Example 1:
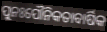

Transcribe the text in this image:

ପୁନଃପୌନିକତାବାର୍ଷିକ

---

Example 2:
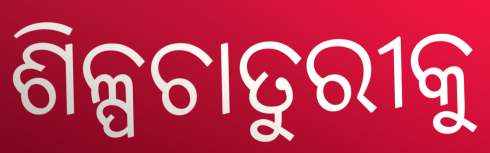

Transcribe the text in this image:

ଶିଳ୍ପଚାତୁରୀକୁ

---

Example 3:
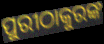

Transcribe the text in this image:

ପୁରୀଠାକୁରଙ୍କ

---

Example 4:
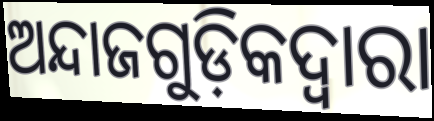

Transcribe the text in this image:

ଅନ୍ଦାଜଗୁଡ଼ିକଦ୍ୱାରା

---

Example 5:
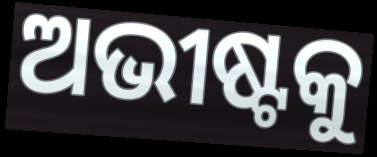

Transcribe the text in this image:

ଅଭୀଷ୍ଟକୁ